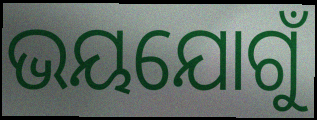
ଭୟଯୋଗୁଁ